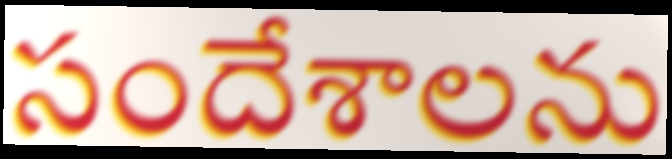
సందేశాలను